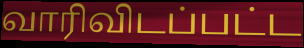
வாரிவிடப்பட்ட